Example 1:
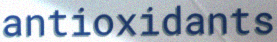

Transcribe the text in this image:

antioxidants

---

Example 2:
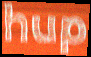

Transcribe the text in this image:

hup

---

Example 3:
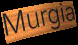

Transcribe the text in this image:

Murgia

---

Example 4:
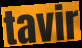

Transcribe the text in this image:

tavir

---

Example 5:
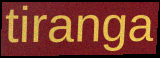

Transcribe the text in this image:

tiranga